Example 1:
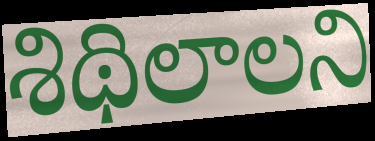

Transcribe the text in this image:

శిథిలాలని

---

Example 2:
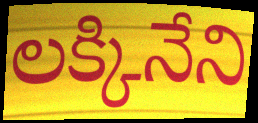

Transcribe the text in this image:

లక్కినేని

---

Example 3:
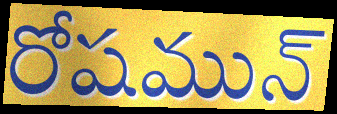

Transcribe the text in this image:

రోషమున్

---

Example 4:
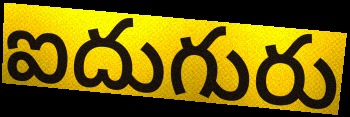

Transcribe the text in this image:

ఐదుగురు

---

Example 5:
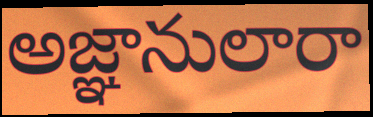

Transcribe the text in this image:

అజ్ఞానులారా